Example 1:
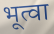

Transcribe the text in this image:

भूत्वा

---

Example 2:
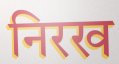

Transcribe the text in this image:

निरख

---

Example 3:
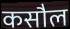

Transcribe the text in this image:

कसौल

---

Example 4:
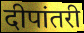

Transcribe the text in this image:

दीपांतरी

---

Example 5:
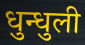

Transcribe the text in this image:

धुन्धुली